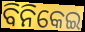
ବିନିକେଇ